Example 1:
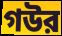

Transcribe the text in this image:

গউর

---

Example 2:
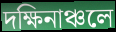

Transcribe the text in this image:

দক্ষিনাঞ্চলে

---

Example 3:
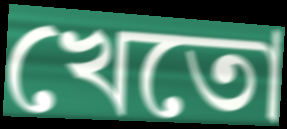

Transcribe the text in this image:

খেতো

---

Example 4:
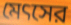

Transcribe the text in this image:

মেৎসের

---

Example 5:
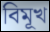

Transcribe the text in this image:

বিমূখ